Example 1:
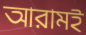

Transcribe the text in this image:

আরামই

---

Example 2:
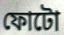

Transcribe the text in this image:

ফোটো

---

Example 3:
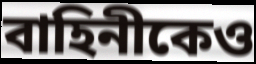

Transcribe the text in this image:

বাহিনীকেও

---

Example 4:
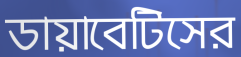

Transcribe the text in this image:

ডায়াবেটিসের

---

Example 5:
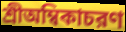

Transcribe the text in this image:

শ্রীঅম্বিকাচরণ